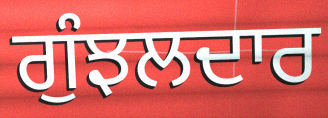
ਗੁੰਝਲਦਾਰ